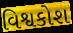
વિશ્વકોશ